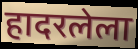
हादरलेला